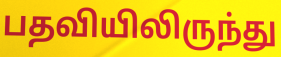
பதவியிலிருந்து